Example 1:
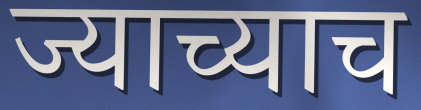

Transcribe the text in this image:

ज्याच्याच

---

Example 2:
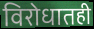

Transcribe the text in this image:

विरोधातही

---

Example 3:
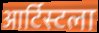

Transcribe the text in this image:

आर्टिस्टला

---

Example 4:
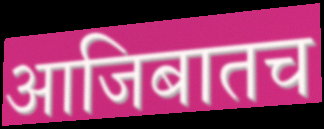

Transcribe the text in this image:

आजिबातच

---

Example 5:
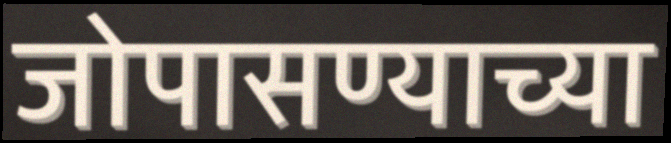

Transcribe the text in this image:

जोपासण्याच्या